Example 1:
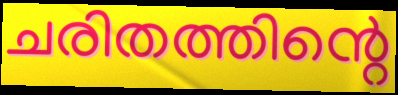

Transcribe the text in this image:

ചരിതത്തിന്റെ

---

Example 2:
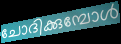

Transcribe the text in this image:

ചോദിക്കുമ്പോൾ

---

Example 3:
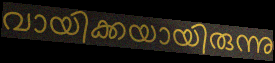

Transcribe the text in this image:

വായിക്കയായിരുന്നു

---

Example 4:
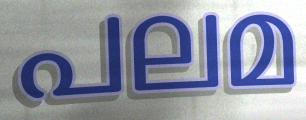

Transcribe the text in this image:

പലമ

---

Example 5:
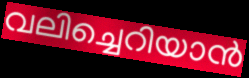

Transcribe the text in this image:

വലിച്ചെറിയാൻ